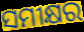
ସମୀକ୍ଷର